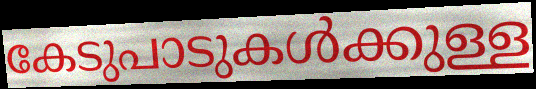
കേടുപാടുകൾക്കുള്ള